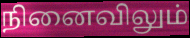
நினைவிலும்